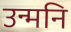
उन्मनि